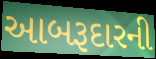
આબરૂદારની